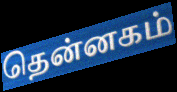
தென்னகம்